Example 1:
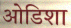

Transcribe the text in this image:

ओडिशा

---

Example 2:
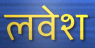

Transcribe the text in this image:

लवेश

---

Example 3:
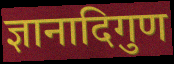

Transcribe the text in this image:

ज्ञानादिगुण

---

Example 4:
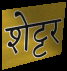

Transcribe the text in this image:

शेट्टर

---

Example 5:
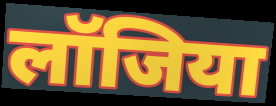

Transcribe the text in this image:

लॉजिया